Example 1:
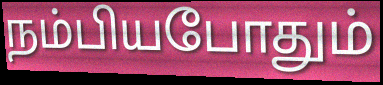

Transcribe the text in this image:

நம்பியபோதும்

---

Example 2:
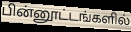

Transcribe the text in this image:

பின்னூட்டங்களில்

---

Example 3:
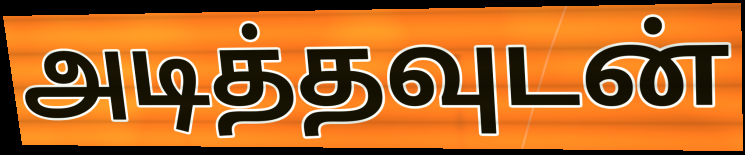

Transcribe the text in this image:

அடித்தவுடன்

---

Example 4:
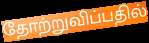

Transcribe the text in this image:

தோற்றுவிப்பதில்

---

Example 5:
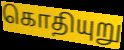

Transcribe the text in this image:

கொதியுறு